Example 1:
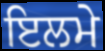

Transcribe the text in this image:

ਇਲਮੇ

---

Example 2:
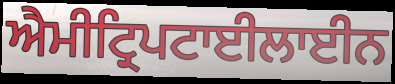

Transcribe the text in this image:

ਐਮੀਟ੍ਰਿਪਟਾਈਲਾਈਨ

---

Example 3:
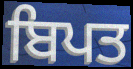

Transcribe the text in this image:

ਬਿਪਤ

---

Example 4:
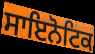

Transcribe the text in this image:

ਸਾਇਨੋਟਿਕ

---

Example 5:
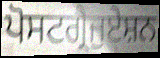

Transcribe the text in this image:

ਪੋਸਟਗ੍ਰੈਜੁਏਸ਼ਨ